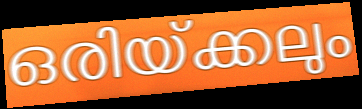
ഒരിയ്‌ക്കലും